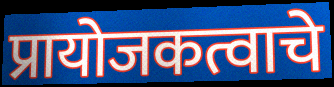
प्रायोजकत्वाचे